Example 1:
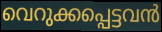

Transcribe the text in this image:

വെറുക്കപ്പെട്ടവൻ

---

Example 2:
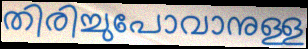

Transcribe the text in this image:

തിരിച്ചുപോവാനുള്ള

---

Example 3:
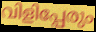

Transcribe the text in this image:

വിളിപ്പേരും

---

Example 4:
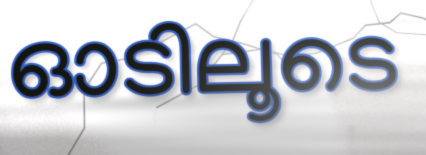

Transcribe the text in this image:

ഓടിലൂടെ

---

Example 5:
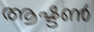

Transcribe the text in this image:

ആഷ്ടൺ